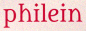
philein